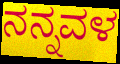
ನನ್ನವಳ